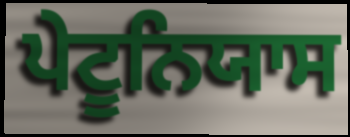
ਪੇਟੂਨਿਯਾਸ